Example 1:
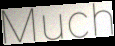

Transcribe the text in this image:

Much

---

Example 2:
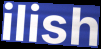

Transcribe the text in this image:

ilish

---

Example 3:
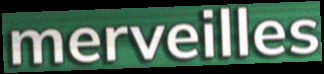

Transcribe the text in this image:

merveilles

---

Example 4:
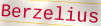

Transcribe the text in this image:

Berzelius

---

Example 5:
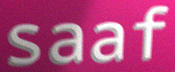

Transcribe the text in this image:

saaf